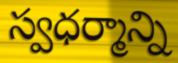
స్వధర్మాన్ని